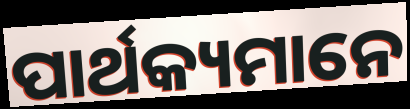
ପାର୍ଥକ୍ୟମାନେ